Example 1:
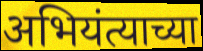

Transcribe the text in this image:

अभियंत्याच्या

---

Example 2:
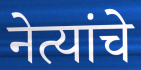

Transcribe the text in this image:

नेत्यांचे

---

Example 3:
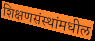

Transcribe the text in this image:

शिक्षणसंस्थांमधील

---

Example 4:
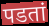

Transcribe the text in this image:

पडतां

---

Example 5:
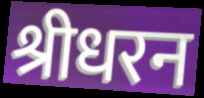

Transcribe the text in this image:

श्रीधरन